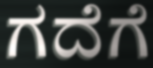
ಗದೆಗೆ